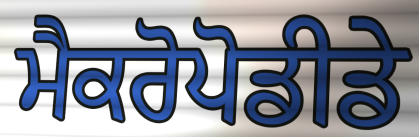
ਮੈਕਰੋਪੋਡੀਡੇ